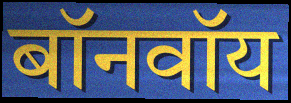
बॉनवॉय